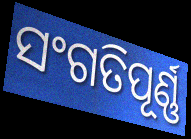
ସଂଗତିପୂର୍ଣ୍ଣ